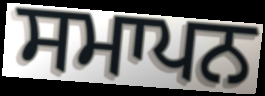
ਸਮਾਪਨ